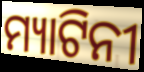
ମ୍ୟାଟିନୀ